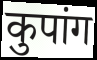
कुपांग